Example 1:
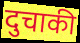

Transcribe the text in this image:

दुचाकी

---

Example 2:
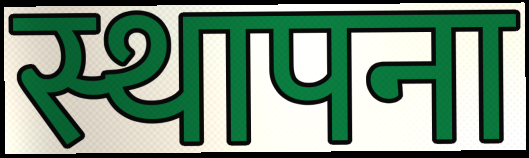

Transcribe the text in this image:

स्थापना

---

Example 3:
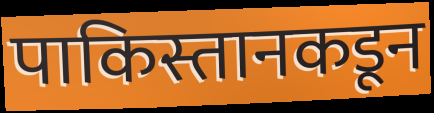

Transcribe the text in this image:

पाकिस्तानकडून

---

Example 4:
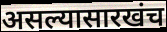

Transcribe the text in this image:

असल्यासारखंच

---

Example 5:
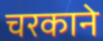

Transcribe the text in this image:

चरकाने